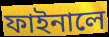
ফাইনালে